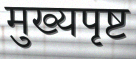
मुख्यपृष्ट